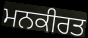
ਮਨਕੀਰਤ